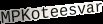
MPKoteesvar